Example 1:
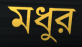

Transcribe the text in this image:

মধুর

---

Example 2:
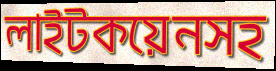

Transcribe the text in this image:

লাইটকয়েনসহ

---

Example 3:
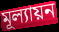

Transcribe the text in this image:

মূল্যায়ন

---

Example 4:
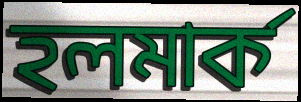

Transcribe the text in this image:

হলমার্ক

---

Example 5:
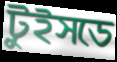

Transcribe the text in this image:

টুইসডে